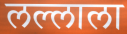
लल्लाला